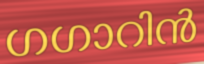
ഗഗാറിൻ